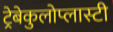
ट्रेबेकुलोप्लास्टी